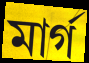
মার্গ